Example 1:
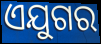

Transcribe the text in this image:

ଏଯୁଗର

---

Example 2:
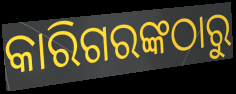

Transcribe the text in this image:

କାରିଗରଙ୍କଠାରୁ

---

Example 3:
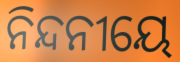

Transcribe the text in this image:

ନିନ୍ଦନୀୟେ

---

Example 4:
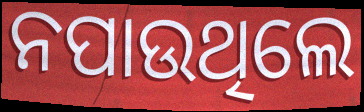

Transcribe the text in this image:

ନପାଉଥିଲେ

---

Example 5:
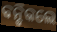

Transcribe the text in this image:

ବନ୍ଦିକଲେ